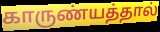
காருண்யத்தால்